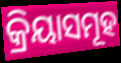
କ୍ରିୟାସମୂହ